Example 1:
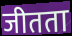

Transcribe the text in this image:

जीतता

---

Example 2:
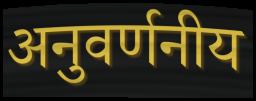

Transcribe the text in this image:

अनुवर्णनीय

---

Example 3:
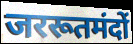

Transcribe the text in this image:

जररूतमंदों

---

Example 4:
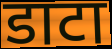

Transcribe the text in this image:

डाटा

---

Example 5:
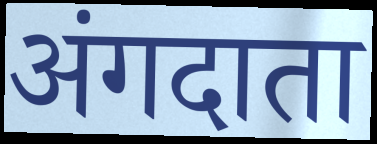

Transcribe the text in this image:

अंगदाता